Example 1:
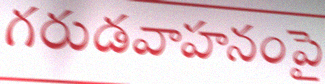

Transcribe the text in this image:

గరుడవాహనంపై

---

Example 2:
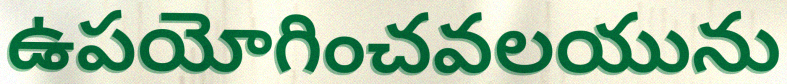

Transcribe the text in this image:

ఉపయోగించవలయును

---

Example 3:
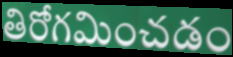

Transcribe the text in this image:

తిరోగమించడం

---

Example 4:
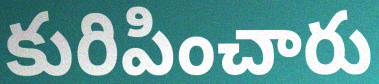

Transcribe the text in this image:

కురిపించారు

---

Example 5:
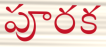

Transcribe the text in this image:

పూరక